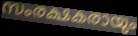
സംരക്ഷകരായും